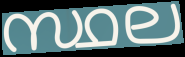
സ്ഥല